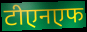
टीएनएफ